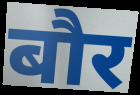
बौर